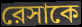
রেসাকে